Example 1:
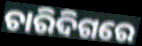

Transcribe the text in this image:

ଚାରିଦିଗରେ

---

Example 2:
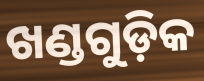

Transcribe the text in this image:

ଖଣ୍ଡଗୁଡ଼ିକ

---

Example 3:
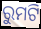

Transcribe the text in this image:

ରୁମଟି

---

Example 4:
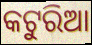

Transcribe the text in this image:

କଟୁରିଆ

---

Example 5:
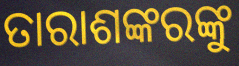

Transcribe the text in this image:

ତାରାଶଙ୍କରଙ୍କୁ